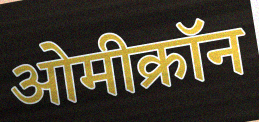
ओमीक्रॉन